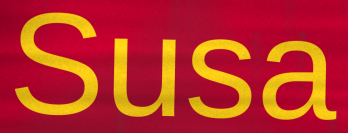
Susa